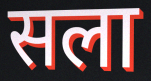
सला